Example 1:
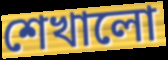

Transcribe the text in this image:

শেখালো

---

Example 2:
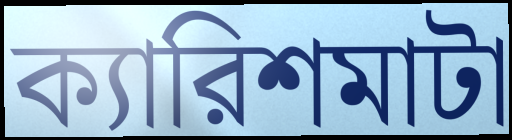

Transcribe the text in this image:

ক্যারিশমাটা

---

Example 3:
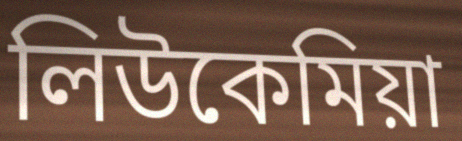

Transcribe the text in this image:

লিউকেমিয়া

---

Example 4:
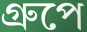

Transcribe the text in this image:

গ্রুপে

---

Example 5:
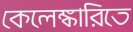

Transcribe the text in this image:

কেলেঙ্কারিতে